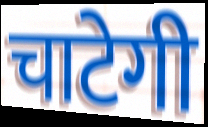
चाटेगी